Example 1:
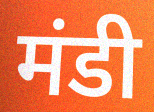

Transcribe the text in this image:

मंडी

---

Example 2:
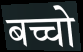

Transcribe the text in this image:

बच्चो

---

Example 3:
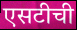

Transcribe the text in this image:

एसटीची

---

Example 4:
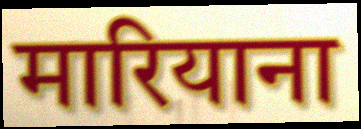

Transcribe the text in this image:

मारियाना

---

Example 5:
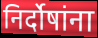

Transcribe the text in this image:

निर्दोषांना